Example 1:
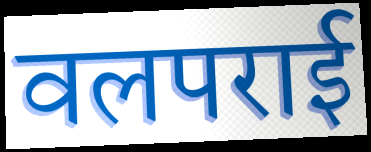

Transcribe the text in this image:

वलपराई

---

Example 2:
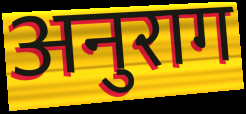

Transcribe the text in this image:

अनुराग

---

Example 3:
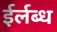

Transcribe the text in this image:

ईर्लब्ध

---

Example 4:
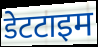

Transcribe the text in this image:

डेटटाइम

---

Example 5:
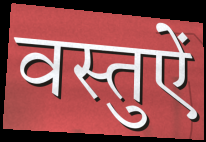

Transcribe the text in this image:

वस्तुऐं